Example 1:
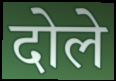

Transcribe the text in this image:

दोले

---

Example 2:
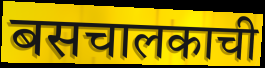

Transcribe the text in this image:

बसचालकाची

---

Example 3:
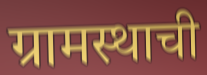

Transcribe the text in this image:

ग्रामस्थाची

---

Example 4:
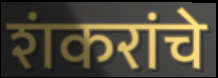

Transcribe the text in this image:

शंकरांचे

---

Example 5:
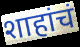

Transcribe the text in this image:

शाहांचं